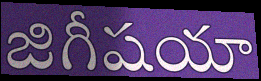
జిగీషయా